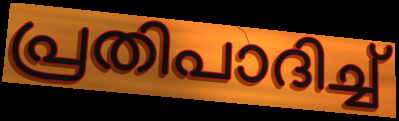
പ്രതിപാദിച്ച്